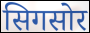
सिगसोर